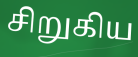
சிறுகிய